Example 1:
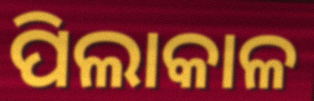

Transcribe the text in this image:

ପିଲାକାଳ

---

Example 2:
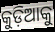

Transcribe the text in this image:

କୁଡ଼ିଆକୁ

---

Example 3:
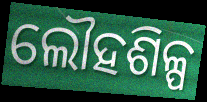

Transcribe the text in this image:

ଲୌହଶିଳ୍ପ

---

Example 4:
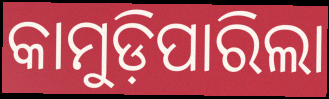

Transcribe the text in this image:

କାମୁଡ଼ିପାରିଲା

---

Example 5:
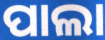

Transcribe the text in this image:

ପାଲା